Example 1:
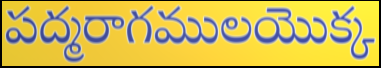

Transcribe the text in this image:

పద్మరాగములయొక్క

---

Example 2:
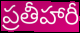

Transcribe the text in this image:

ప్రతీహారీ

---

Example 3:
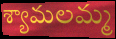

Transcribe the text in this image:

శ్యామలమ్మ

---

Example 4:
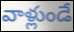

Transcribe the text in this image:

వాళ్లుండే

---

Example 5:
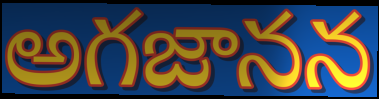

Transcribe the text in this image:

అగజానన